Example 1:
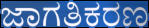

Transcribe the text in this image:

ಜಾಗತಿಕರಣ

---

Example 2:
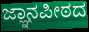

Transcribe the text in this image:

ಜ್ಞಾನಪೀಠದ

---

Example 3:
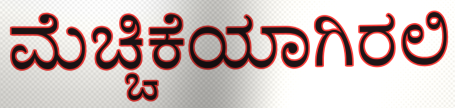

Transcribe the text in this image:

ಮೆಚ್ಚಿಕೆಯಾಗಿರಲಿ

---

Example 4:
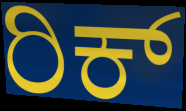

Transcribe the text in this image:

ರಿಕ್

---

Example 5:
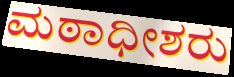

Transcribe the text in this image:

ಮಠಾಧೀಶರು